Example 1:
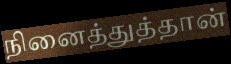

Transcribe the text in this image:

நினைத்துத்தான்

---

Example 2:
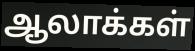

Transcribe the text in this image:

ஆலாக்கள்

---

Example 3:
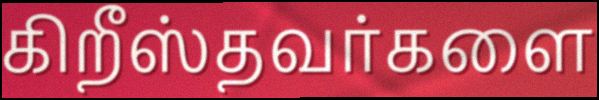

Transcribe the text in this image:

கிறீஸ்தவர்களை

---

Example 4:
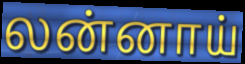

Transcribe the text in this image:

லன்னாய்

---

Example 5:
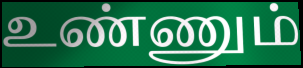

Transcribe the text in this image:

உண்ணும்